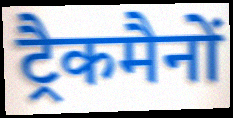
ट्रैकमैनों